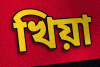
খিয়া